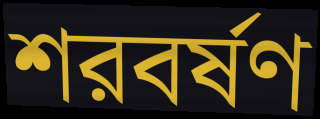
শরবর্ষণ